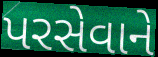
પરસેવાને